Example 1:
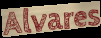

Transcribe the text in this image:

Alvares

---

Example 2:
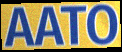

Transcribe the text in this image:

AATO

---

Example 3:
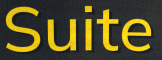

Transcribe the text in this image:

Suite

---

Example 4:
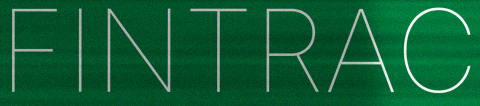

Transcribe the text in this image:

FINTRAC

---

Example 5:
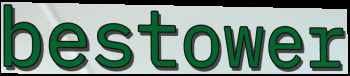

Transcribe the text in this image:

bestower